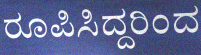
ರೂಪಿಸಿದ್ದರಿಂದ